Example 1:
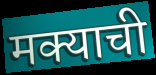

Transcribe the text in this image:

मक्याची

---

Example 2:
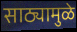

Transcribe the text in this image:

साठ्यामुळे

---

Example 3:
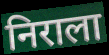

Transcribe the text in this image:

निराला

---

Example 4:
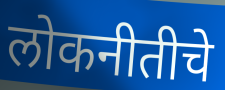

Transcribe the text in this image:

लोकनीतीचे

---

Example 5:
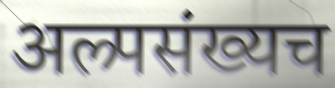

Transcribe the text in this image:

अल्पसंख्यच